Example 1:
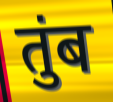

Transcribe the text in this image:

तुंब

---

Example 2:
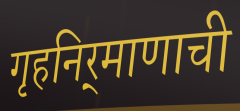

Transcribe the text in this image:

गृहनिर्माणाची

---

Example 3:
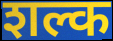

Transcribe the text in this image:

शल्क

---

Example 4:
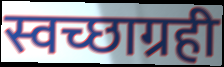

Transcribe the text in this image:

स्वच्छाग्रही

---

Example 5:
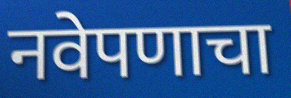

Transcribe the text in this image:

नवेपणाचा